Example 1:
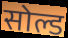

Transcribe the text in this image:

सोल्ड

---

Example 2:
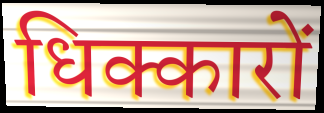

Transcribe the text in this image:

धिक्कारों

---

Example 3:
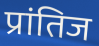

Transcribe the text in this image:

प्रांतिज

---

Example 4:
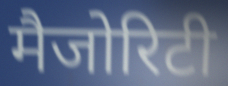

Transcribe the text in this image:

मैजोरिटी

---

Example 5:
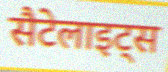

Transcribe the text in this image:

सैटेलाइट्स